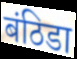
बंठिडा